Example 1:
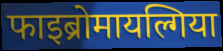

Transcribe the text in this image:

फाइब्रोमायल्गिया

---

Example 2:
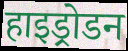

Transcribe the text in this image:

हाइड्रोडन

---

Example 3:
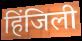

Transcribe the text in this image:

हिंजिली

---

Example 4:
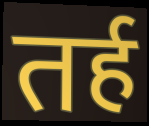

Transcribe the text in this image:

तर्ह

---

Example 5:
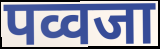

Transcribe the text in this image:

पव्वजा